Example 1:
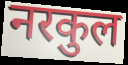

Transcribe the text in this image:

नरकुल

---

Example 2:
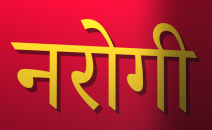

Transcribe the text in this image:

नरोगी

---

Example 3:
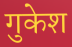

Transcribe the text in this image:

गुकेश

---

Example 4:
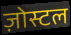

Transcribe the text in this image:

ज़ोस्टल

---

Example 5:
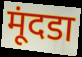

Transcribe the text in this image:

मूंदडा